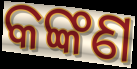
କଙ୍କଣ